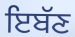
ਇਬੱਣ